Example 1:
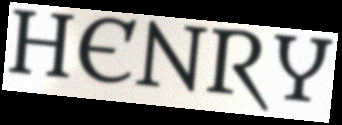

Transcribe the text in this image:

HENRY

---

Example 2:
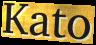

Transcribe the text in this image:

Kato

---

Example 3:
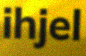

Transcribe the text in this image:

ihjel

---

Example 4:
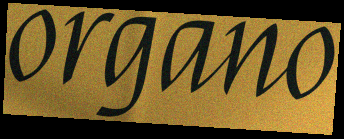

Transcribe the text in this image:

organo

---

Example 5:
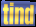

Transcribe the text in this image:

tind